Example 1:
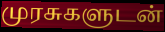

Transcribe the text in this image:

முரசுகளுடன்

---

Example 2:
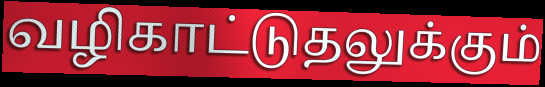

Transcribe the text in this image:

வழிகாட்டுதலுக்கும்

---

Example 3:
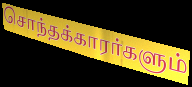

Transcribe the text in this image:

சொந்தக்காரர்களும்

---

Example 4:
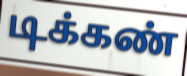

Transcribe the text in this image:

டிக்கண்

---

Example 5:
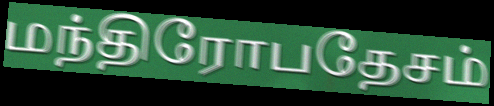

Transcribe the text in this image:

மந்திரோபதேசம்